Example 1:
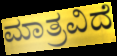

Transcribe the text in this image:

ಮಾತ್ರವಿದೆ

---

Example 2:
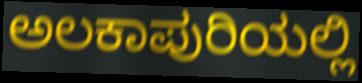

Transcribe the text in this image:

ಅಲಕಾಪುರಿಯಲ್ಲಿ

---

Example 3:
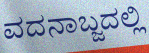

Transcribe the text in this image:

ವದನಾಬ್ಜದಲ್ಲಿ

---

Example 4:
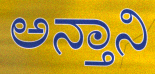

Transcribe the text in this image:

ಅನ್ತಾನಿ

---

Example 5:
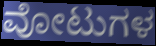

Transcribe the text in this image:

ವೋಟುಗಳ